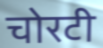
चोरटी